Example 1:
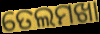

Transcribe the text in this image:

ତେଲମଖା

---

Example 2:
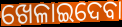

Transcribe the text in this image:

ଖେଳାଇଦେବା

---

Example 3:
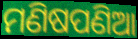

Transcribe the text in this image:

ମଣିଷପଣିଆ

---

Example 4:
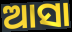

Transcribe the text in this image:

ଆସା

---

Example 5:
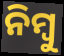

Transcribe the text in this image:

ନିମ୍ବୁ